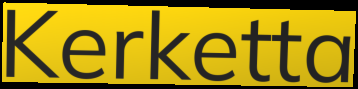
Kerketta